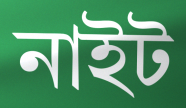
নাইট